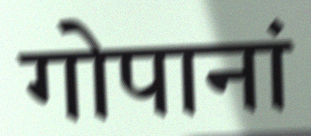
गोपानां